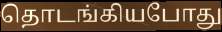
தொடங்கியபோது